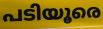
പടിയൂരെ